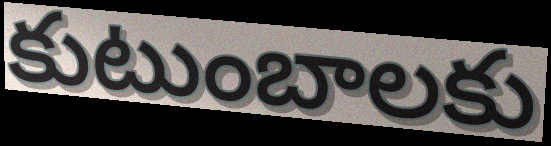
కుటుంబాలకు